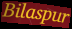
Bilaspur